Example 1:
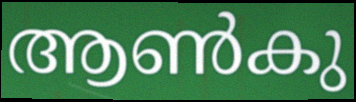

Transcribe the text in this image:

ആൺകു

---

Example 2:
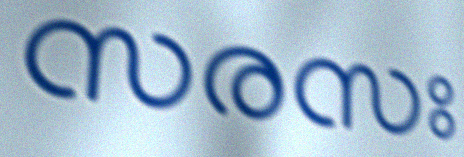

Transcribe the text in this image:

സരസഃ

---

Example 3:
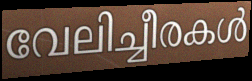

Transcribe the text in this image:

വേലിച്ചീരകൾ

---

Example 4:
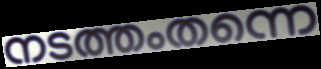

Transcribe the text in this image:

നടത്തംതന്നെ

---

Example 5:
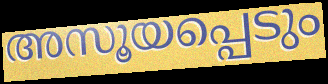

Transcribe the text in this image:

അസൂയപ്പെടും